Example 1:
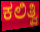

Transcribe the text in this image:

ಕಲಿತ್ವಿ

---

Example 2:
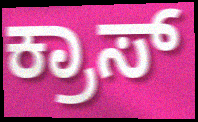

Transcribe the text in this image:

ಕ್ರಾಸ್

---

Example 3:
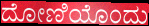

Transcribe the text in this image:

ದೋಣಿಯೊಂದು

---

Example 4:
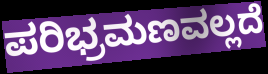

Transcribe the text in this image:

ಪರಿಭ್ರಮಣವಲ್ಲದೆ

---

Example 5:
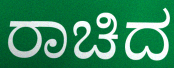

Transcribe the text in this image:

ರಾಚಿದ